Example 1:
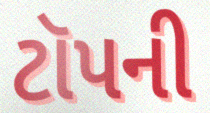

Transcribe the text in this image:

ટૉપની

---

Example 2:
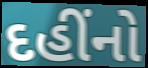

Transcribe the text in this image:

દહીંનો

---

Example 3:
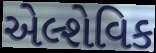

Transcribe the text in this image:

એલ્શેવિક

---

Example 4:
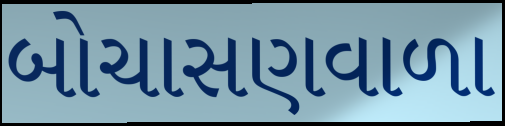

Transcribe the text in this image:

બોચાસણવાળા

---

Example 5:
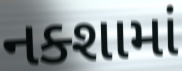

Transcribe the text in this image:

નક્શામાં